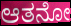
ಆತನೋ